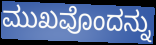
ಮುಖವೊಂದನ್ನು